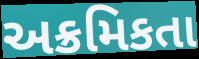
અક્રમિકતા